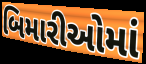
બિમારીઓમાં